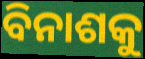
ବିନାଶକୁ